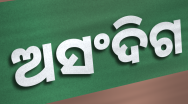
ଅସଂଦିଗ